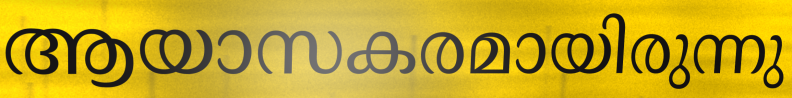
ആയാസകരമായിരുന്നു